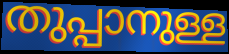
തുപ്പാനുള്ള